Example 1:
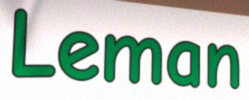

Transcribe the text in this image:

Leman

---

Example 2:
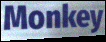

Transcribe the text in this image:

Monkey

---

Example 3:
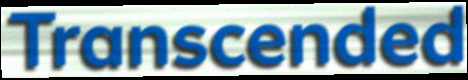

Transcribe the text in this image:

Transcended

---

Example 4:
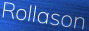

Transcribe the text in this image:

Rollason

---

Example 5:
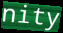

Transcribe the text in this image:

nity